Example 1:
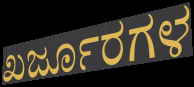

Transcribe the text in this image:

ಖರ್ಜೂರಗಳ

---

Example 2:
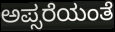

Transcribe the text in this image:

ಅಪ್ಸರೆಯಂತೆ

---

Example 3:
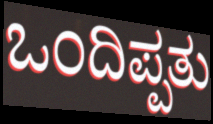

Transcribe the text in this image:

ಒಂದಿಪ್ಪತು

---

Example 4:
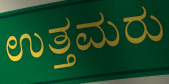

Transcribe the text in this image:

ಉತ್ತಮರು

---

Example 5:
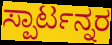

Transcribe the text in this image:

ಸ್ಪಾರ್ಟನ್ನರ